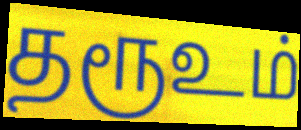
தரூஉம்